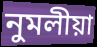
নুমলীয়া